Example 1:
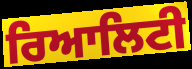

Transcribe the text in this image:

ਰਿਆਲਿਟੀ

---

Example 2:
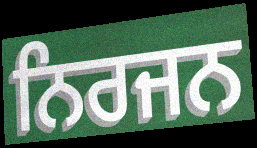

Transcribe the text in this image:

ਨਿਰਜਨ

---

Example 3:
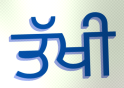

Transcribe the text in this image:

ਤੱਖੀ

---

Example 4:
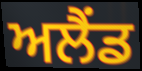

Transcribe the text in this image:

ਅਲੈਂਡ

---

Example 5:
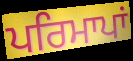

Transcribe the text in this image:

ਪਰਿਮਾਪਾਂ